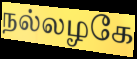
நல்லழகே